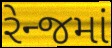
રેન્જમાં